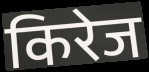
किरेज